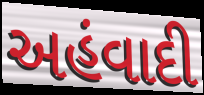
અહંવાદી